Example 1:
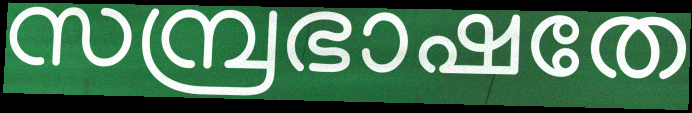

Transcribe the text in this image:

സമ്പ്രഭാഷതേ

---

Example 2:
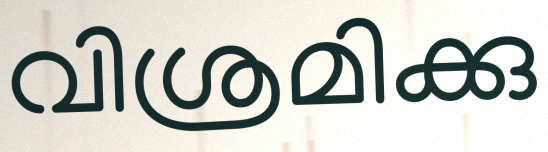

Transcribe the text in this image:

വിശ്രമിക്കു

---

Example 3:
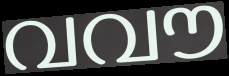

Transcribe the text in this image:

വവൗ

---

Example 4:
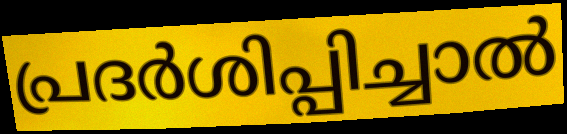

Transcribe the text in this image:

പ്രദർശിപ്പിച്ചാൽ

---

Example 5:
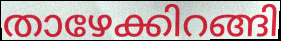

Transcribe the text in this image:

താഴേക്കിറങ്ങി